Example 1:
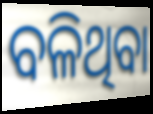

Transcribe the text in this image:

ବଳିଥିବା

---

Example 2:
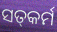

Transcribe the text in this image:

ସତ୍‍କର୍ମ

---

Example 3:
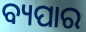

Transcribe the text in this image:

ବ୍ୟପାର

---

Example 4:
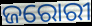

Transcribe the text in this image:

ଜରୋରୀ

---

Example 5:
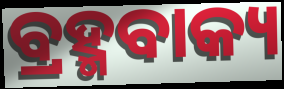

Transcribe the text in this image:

ବ୍ରହ୍ମବାକ୍ୟ